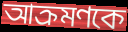
আক্রমণকে